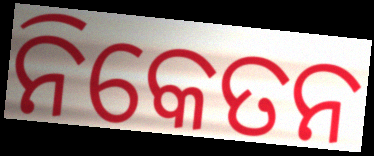
ନିକେତନ